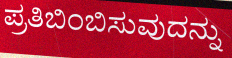
ಪ್ರತಿಬಿಂಬಿಸುವುದನ್ನು